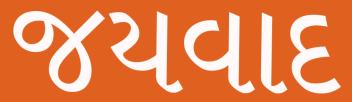
જયવાદ